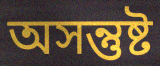
অসন্তুষ্ট